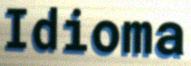
Idioma